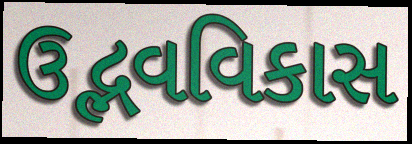
ઉદ્ભવવિકાસ